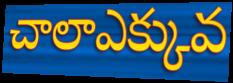
చాలాఎక్కువ